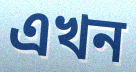
এখন